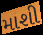
માશી